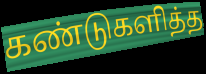
கண்டுகளித்த